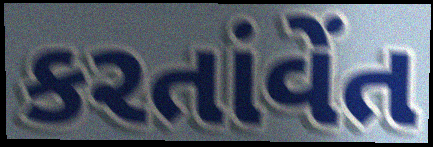
કરતાંવેંત